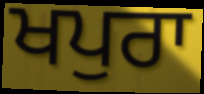
ਖਪੁਰਾ